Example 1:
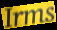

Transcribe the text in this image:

Irms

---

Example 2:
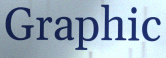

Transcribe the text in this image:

Graphic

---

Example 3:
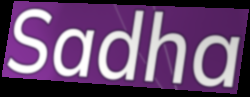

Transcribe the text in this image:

Sadha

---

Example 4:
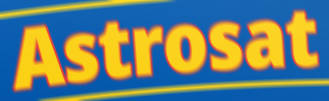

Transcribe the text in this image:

Astrosat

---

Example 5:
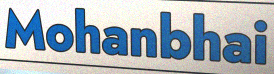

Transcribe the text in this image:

Mohanbhai